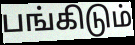
பங்கிடும்